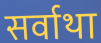
सर्वाथा